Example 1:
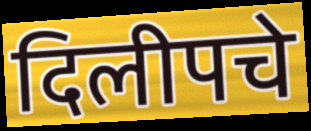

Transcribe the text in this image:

दिलीपचे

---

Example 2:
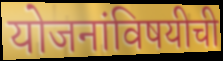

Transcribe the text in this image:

योजनांविषयीची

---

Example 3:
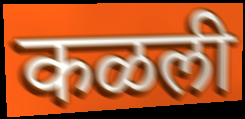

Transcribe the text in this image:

कळली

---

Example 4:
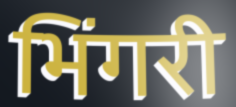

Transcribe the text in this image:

भिंगरी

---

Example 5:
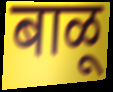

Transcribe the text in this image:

बाळू